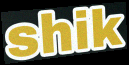
shik